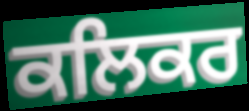
ਕਲਿਕਰ